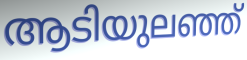
ആടിയുലഞ്ഞ്